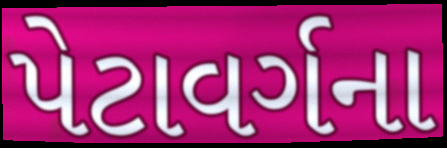
પેટાવર્ગના